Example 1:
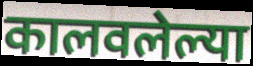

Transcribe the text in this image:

कालवलेल्या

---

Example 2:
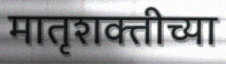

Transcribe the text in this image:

मातृशक्तीच्या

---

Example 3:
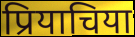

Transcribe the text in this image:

प्रियाचिया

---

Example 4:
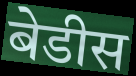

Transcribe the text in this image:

बेडीस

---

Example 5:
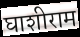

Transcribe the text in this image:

घाशीराम